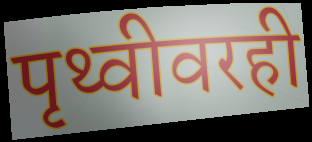
पृथ्वीवरही